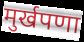
मुर्खपणा